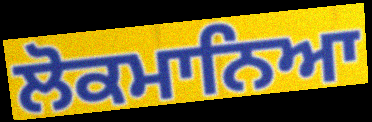
ਲੋਕਮਾਨਿਆ